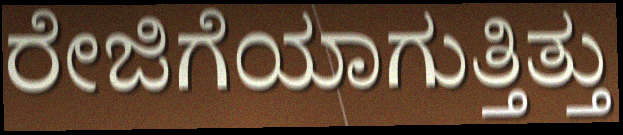
ರೇಜಿಗೆಯಾಗುತ್ತಿತ್ತು